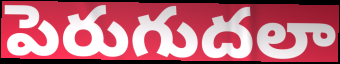
పెరుగుదలా